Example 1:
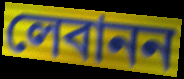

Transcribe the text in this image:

লেবানন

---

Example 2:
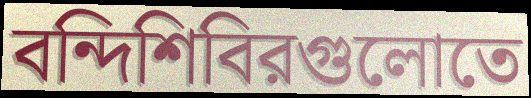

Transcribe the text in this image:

বন্দিশিবিরগুলোতে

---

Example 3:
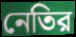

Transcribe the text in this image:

নেতির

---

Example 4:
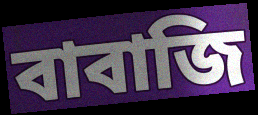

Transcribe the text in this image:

বাবাজি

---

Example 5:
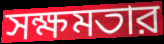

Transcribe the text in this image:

সক্ষমতার